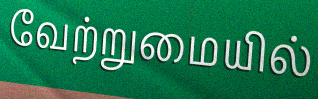
வேற்றுமையில்